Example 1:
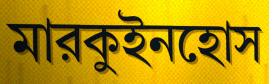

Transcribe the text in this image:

মারকুইনহোস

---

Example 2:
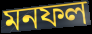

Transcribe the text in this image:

মনফল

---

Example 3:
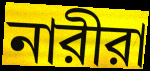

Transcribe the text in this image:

নারীরা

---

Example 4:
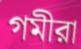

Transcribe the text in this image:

গমীরা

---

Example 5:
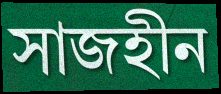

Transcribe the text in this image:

সাজহীন